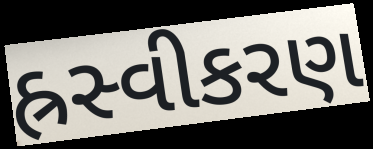
હ્રસ્વીકરણ